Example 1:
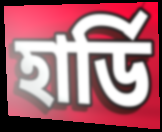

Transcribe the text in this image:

হাৰ্ডি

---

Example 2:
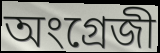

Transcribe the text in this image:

অংগ্ৰেজী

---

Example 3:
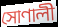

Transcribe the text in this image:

সোণালী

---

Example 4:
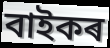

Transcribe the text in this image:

বাইকৰ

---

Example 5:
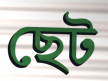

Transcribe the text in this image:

ছেট